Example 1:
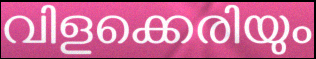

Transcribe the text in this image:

വിളക്കെരിയും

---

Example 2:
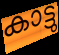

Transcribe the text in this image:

കാട്ടു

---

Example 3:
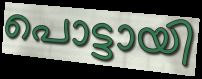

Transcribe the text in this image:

പൊട്ടായി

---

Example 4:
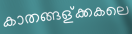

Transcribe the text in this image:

കാതങ്ങള്ക്കകലെ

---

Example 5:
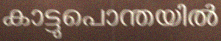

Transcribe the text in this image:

കാട്ടുപൊന്തയിൽ